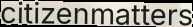
citizenmatters